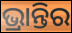
ଭ୍ରାନ୍ତିର